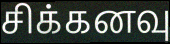
சிக்கனவு